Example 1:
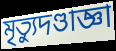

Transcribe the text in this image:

মৃত্যুদণ্ডাজ্ঞা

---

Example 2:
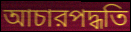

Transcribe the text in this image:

আচারপদ্ধতি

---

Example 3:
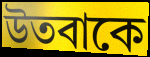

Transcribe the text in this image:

উতবাকে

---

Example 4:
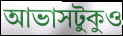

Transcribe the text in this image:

আভাসটুকুও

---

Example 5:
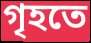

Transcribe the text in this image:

গৃহতে